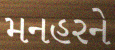
મનહરને